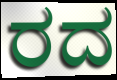
ರದ